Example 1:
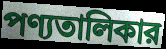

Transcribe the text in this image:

পণ্যতালিকার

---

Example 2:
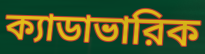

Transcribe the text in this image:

ক্যাডাভারিক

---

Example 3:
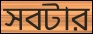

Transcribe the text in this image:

সবটার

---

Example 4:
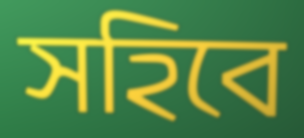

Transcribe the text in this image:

সহিবে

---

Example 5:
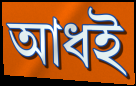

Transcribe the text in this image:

আধই